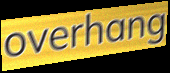
overhang